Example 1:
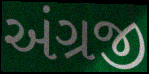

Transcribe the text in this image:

અંગ્રજી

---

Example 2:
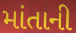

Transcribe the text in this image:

માંતાની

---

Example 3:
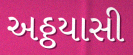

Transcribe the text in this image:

અઠ્ઠયાસી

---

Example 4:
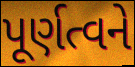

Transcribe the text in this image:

પૂર્ણત્વને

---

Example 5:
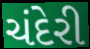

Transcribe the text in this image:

ચંદેરી